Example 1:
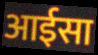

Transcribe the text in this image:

आईसा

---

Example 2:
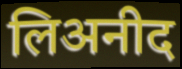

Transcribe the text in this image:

लिअनीद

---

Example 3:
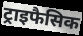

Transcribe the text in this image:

ट्राइफैसिक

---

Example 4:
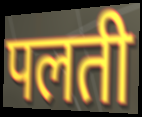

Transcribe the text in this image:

पलती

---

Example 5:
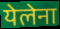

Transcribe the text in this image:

येलेना